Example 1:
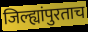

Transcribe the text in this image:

जिल्ह्यांपुरताच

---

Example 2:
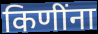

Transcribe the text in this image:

किणींना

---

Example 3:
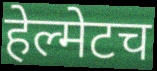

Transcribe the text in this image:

हेल्मेटच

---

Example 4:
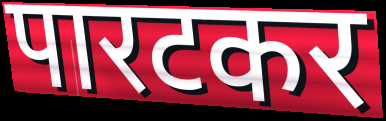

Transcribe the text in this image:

पारटकर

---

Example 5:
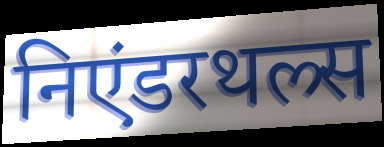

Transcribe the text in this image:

निएंडरथल्स